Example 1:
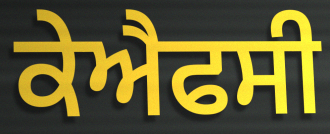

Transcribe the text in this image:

ਕੇਐਫਸੀ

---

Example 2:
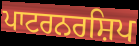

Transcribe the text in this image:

ਪਾਟਰਨਰਸ਼ਿਪ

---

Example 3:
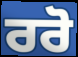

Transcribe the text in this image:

ਰਰੋ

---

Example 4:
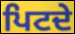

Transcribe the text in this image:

ਪਿਟਦੇ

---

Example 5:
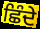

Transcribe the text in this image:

ਛਿੰਦੇ